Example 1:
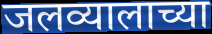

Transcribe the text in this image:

जलव्यालाच्या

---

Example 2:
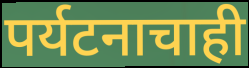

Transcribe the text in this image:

पर्यटनाचाही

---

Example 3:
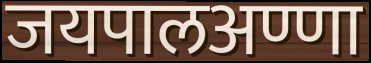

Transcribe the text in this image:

जयपालअण्णा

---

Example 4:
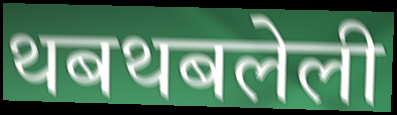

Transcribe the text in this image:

थबथबलेली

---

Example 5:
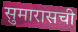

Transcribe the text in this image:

सुमारासची